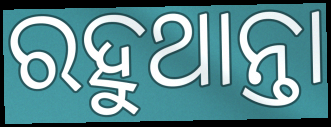
ରହୁଥାନ୍ତା